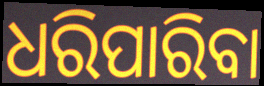
ଧରିପାରିବା